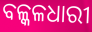
ବଳ୍କଳଧାରୀ